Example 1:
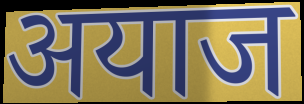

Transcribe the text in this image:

अयाज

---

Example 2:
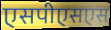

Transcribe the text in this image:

एसपीएसएस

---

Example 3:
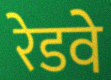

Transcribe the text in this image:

रेडवे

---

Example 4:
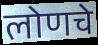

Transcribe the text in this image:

लोणचे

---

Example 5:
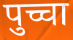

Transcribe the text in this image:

पुच्चा